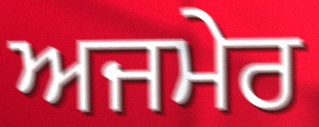
ਅਜਮੇਰ